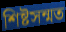
শিষ্টসন্মত